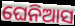
ଘେନିଆସ